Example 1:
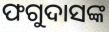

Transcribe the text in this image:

ଫଗୁଦାସଙ୍କ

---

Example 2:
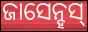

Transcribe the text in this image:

ଜାସେନ୍ହସ୍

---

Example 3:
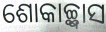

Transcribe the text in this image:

ଶୋକାଚ୍ଛ୍ୱାସ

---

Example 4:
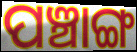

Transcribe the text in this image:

ପଞ୍ଚାଙ୍ଗ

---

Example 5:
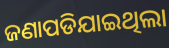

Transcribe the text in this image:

ଜଣାପଡିଯାଇଥିଲା